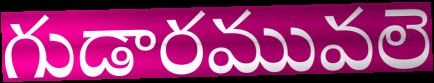
గుడారమువలె